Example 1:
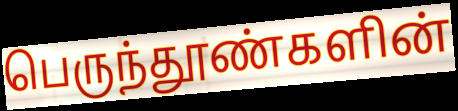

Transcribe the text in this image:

பெருந்தூண்களின்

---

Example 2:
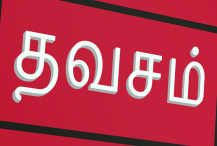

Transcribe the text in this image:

தவசம்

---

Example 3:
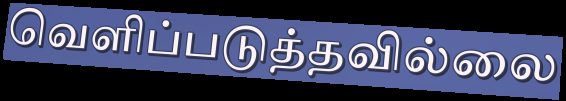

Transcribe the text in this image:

வெளிப்படுத்தவில்லை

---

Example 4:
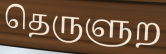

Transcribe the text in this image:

தெருளுற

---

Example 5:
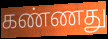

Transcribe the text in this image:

கண்ணது